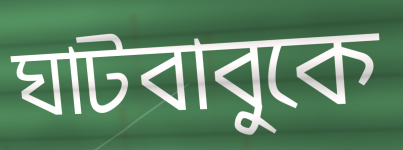
ঘাটবাবুকে